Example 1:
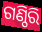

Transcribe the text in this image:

ଗଣ୍ଠିରି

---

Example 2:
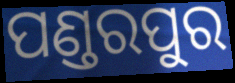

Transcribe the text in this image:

ପଣ୍ଡରପୁର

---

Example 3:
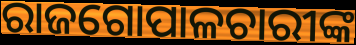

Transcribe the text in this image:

ରାଜଗୋପାଳଚାରୀଙ୍କ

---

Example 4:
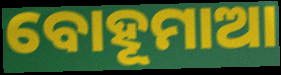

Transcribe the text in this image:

ବୋହୂମାଆ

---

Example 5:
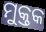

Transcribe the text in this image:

ମୁକ୍ତକ